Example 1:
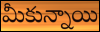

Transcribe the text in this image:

మీకున్నాయి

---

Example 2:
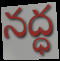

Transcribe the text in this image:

నద్ధ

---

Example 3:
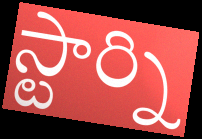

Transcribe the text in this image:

స్టార్ని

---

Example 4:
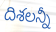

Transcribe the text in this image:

దిశలన్నీ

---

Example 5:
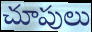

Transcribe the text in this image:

చూపులు